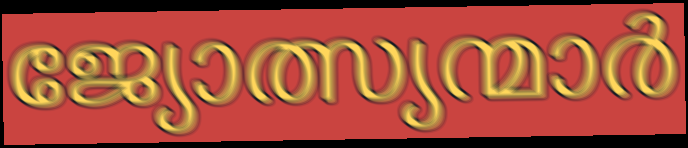
ജ്യോത്സ്യന്മാർ